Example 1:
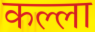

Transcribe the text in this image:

कल्ला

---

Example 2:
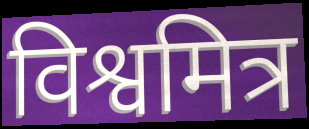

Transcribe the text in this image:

विश्वमित्र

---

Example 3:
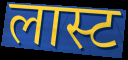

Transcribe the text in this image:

लास्ट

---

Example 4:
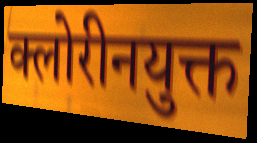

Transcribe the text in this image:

क्लोरीनयुक्त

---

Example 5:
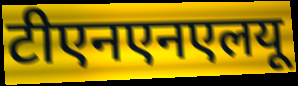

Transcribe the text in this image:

टीएनएनएलयू